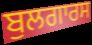
ਬੁਲਗਾਰਸ